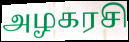
அழகரசி